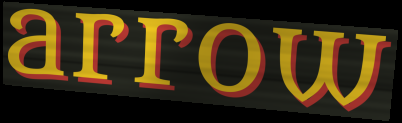
arrow